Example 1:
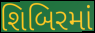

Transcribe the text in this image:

શિબિરમાં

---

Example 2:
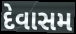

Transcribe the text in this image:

દેવાસમ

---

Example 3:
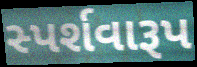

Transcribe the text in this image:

સ્પર્શવારૂપ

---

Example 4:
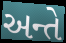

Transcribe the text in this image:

અન્તે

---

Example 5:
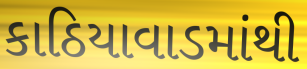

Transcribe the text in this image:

કાઠિયાવાડમાંથી